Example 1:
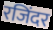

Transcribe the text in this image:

रजिंदर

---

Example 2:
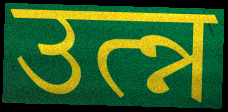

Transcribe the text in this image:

उत्न्न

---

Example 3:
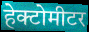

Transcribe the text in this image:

हेक्टोमीटर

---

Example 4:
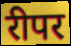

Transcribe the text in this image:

रीपर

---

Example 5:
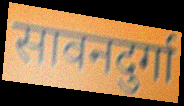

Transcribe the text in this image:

सावनदुर्गा